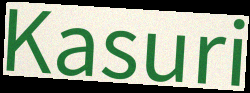
Kasuri